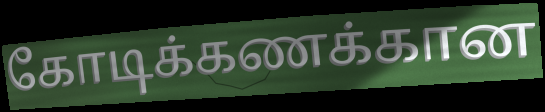
கோடிக்கணக்கான